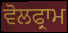
ਵੋਲਫ੍ਰਾਮ